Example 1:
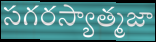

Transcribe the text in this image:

సగరస్యాత్మజా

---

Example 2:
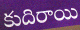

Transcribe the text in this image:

కుదిరాయి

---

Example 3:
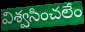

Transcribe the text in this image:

విశ్వసించలేం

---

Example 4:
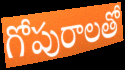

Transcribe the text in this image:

గోపురాలతో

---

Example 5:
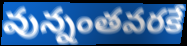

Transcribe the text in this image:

వున్నంతవరకే